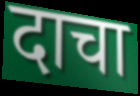
दाचा